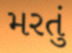
મરતું